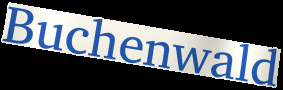
Buchenwald